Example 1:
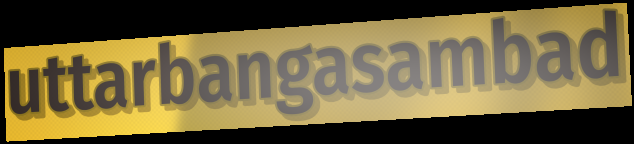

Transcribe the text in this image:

uttarbangasambad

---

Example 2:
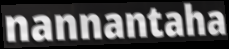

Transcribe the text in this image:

nannantaha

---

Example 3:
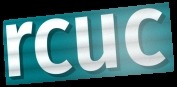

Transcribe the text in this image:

rcuc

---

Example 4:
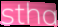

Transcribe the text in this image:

stha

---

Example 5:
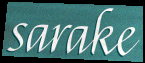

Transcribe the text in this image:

sarake